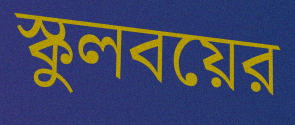
স্কুলবয়ের